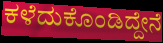
ಕಳೆದುಕೊಂಡಿದ್ದೇನೆ